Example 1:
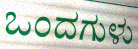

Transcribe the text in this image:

ಒಂದಗುಳು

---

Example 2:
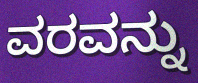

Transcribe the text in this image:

ವರವನ್ನು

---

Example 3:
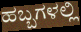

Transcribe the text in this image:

ಹಬ್ಬಗಳಲ್ಲಿ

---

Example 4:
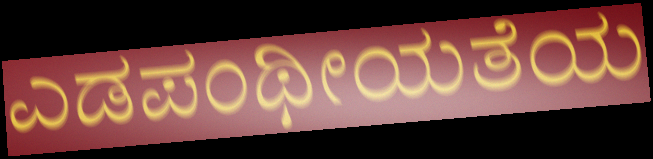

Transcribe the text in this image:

ಎಡಪಂಥೀಯತೆಯ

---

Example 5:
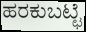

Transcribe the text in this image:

ಹರಕುಬಟ್ಟೆ